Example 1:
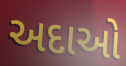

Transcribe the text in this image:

અદાઓ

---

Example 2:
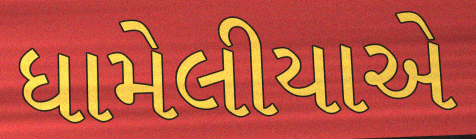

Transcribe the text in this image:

ધામેલીયાએ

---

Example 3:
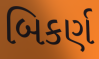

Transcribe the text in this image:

બિકર્ણ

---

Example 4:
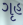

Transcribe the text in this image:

ગૃહ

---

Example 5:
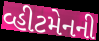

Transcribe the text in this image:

વ્હીટમેનની